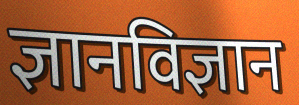
ज्ञानविज्ञान